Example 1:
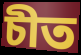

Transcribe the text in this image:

চীত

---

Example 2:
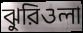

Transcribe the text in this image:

ঝুরিওলা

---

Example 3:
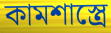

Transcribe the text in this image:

কামশাস্ত্রে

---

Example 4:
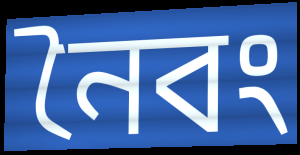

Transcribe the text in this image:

নৈবং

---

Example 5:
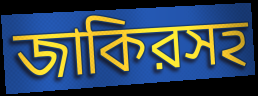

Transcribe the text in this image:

জাকিরসহ